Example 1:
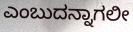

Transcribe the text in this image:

ಎಂಬುದನ್ನಾಗಲೀ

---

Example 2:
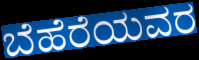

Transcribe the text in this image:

ಬೆಹೆರೆಯವರ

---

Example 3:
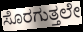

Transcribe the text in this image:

ಸೊರಗುತ್ತಲೇ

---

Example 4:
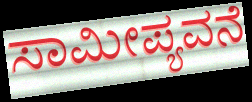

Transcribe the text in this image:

ಸಾಮೀಪ್ಯವನೆ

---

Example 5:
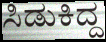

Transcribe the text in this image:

ಸಿಡುಕಿದ್ದ